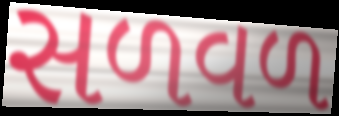
સળવળ